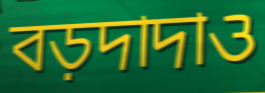
বড়দাদাও